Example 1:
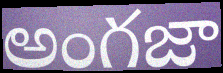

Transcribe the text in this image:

అంగజా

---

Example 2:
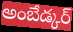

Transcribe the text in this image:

అంబేడ్కర్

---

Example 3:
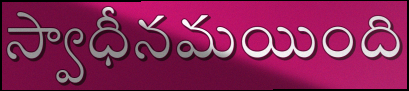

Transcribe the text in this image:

స్వాధీనమయింది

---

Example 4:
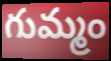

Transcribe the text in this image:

గుమ్మం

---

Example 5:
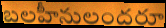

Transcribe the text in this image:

బలహీనులందరూ